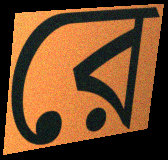
রে